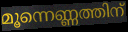
മൂന്നെണ്ണത്തിന്